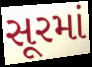
સૂરમાં